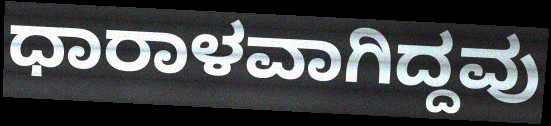
ಧಾರಾಳವಾಗಿದ್ದವು